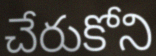
చేరుకోని